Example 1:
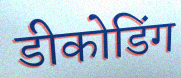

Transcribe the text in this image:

डीकोडिंग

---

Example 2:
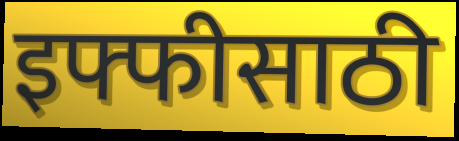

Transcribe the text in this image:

इफ्फीसाठी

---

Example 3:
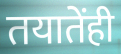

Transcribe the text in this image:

तयातेंही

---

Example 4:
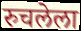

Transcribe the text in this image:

रुचलेला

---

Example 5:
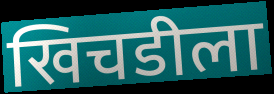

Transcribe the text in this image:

खिचडीला